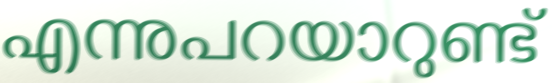
എന്നുപറയാറുണ്ട്